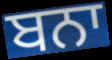
ਬਨਾ